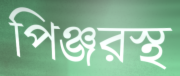
পিঞ্জরস্থ